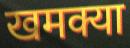
खमक्या